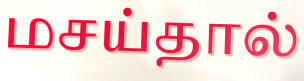
மசய்தால்